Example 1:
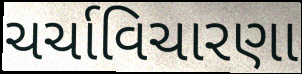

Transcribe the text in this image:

ચર્ચાવિચારણા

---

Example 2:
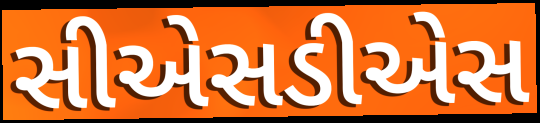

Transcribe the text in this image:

સીએસડીએસ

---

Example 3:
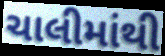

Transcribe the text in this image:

ચાલીમાંથી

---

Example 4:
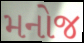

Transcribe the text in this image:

મનોજ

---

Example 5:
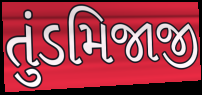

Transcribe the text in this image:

તુંડમિજાજી